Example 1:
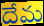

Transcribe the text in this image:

దేమ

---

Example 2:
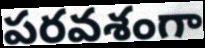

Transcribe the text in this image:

పరవశంగా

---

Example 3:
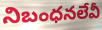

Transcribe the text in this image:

నిబంధనలేవీ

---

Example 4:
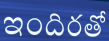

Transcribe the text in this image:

ఇందిరతో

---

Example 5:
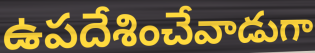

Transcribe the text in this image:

ఉపదేశించేవాడుగా